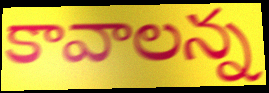
కావాలన్న